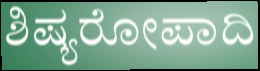
ಶಿಷ್ಯರೋಪಾದಿ